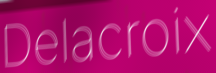
Delacroix